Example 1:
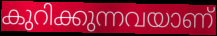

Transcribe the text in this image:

കുറിക്കുന്നവയാണ്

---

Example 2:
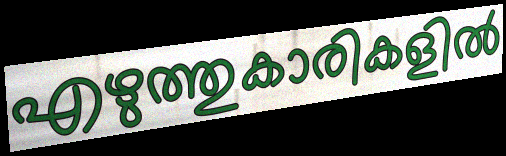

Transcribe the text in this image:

എഴുത്തുകാരികളിൽ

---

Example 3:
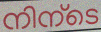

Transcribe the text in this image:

നിന്ടെ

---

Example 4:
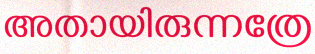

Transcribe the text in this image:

അതായിരുന്നത്രേ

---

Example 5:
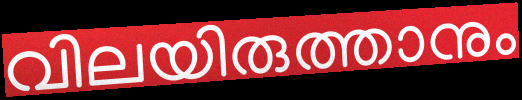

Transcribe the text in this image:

വിലയിരുത്താനും